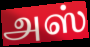
அஸ்